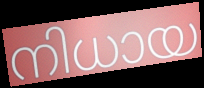
നിധായ